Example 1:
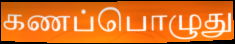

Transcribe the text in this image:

கணப்பொழுது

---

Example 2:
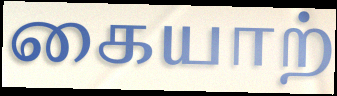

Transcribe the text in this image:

கையாற்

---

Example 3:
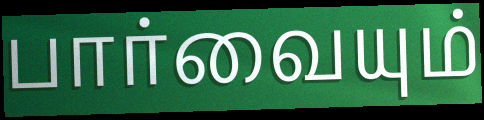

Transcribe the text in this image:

பார்வையும்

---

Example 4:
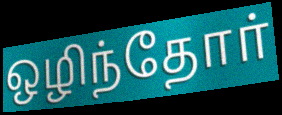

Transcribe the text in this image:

ஒழிந்தோர்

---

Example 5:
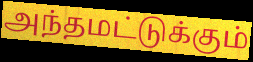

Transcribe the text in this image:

அந்தமட்டுக்கும்